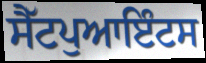
ਸੈੱਟਪੁਆਇੰਟਸ